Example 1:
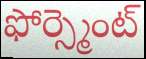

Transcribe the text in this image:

ఫోర్స్మెంట్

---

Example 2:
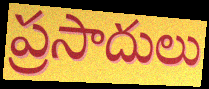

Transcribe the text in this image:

ప్రసాదులు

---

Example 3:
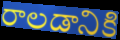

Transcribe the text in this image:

రాలడానికి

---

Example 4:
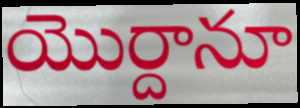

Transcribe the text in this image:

యొర్దానూ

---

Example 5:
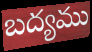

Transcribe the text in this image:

బద్యము